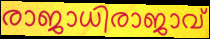
രാജാധിരാജാവ്